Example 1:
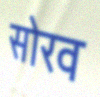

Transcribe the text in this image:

सोरव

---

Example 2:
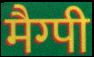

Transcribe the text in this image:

मैग्पी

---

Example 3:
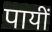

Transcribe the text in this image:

पायीं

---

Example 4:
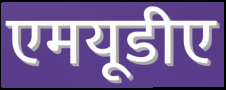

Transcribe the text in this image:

एमयूडीए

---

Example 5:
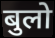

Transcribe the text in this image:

बुलो